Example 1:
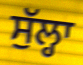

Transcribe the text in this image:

ਸੁੱਲ੍ਹਾ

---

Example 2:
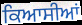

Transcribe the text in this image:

ਕਿਆਸੀਆਂ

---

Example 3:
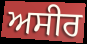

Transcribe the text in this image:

ਅਸੀਰ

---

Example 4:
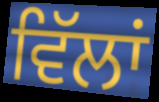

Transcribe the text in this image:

ਵਿੱਲਾਂ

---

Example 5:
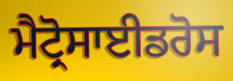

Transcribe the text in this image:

ਮੈਟ੍ਰੋਸਾਈਡਰੋਸ